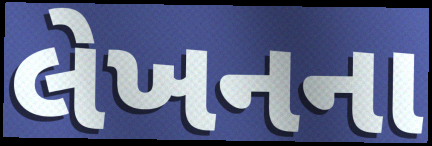
લેખનના